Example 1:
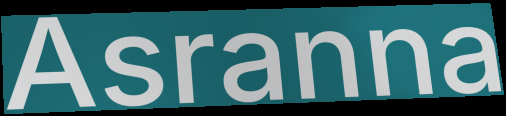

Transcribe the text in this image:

Asranna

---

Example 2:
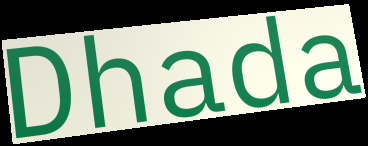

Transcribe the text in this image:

Dhada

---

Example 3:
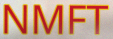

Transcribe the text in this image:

NMFT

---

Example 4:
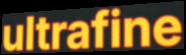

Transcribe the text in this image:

ultrafine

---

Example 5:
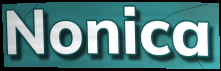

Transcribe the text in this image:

Nonica